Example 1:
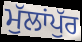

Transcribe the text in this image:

ਮੁੱਲਾਂਪੁੱਰ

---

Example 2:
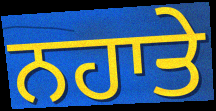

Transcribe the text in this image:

ਨਹਾਤੇ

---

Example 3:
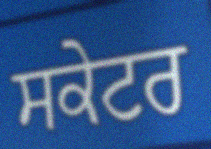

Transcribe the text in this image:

ਸਕੇਟਰ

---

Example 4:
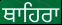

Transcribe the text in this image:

ਥਾਹਿਰਾ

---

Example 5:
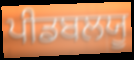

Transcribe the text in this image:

ਪੀਡਬਲਯੂ